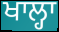
ਖਾਲ੍ਹਾ